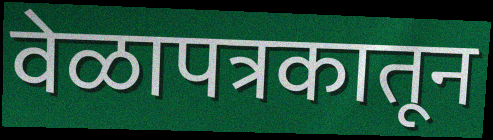
वेळापत्रकातून